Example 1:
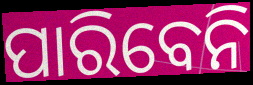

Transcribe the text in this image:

ପାରିବେନି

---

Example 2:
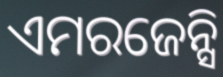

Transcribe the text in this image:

ଏମରଜେନ୍ସି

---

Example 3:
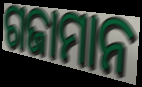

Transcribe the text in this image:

ଗଜାମାନ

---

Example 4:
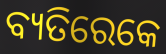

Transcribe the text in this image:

ବ୍ୟତିରେକେ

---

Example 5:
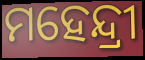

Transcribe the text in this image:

ମହେନ୍ଦ୍ରୀ